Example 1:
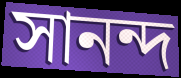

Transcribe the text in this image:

সানন্দ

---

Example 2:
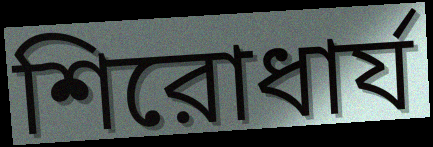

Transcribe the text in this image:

শিরোধার্য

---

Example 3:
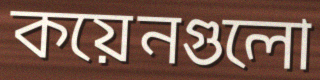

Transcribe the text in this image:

কয়েনগুলো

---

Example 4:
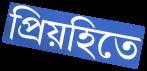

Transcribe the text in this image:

প্রিয়হিতে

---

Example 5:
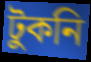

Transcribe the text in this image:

টুকনি